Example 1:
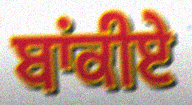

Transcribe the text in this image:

ਬਾਂਕੀਏ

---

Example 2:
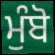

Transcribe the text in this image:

ਮੁੰਬੋ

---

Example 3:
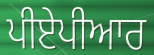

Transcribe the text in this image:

ਪੀਏਪੀਆਰ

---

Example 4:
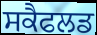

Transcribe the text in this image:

ਸਕੈਫਲਡ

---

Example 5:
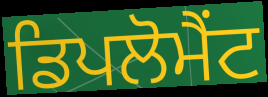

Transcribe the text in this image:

ਡਿਪਲੋਮੈਂਟ